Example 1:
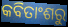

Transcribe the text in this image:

କବିତାଂଶରୁ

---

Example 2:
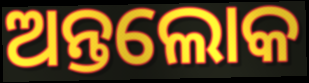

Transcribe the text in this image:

ଅନ୍ତଲୋକ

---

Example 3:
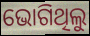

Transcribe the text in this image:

ଭୋଗିଥିଲୁ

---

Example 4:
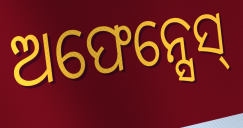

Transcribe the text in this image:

ଅଫେନ୍ସେସ୍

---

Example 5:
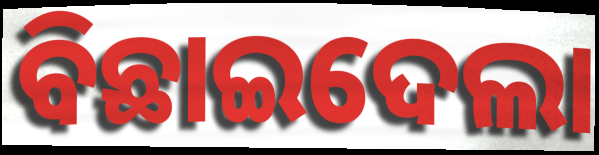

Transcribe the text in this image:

ବିଛାଇଦେଲା